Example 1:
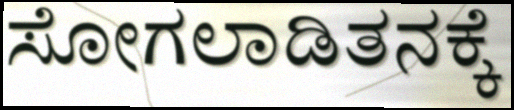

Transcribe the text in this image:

ಸೋಗಲಾಡಿತನಕ್ಕೆ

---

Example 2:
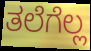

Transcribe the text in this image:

ತಲೆಗೆಲ್ಲ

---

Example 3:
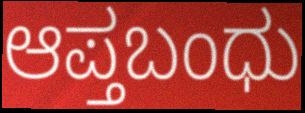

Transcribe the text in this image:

ಆಪ್ತಬಂಧು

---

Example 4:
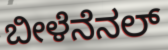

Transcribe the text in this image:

ಬೀಳೆನೆನಲ್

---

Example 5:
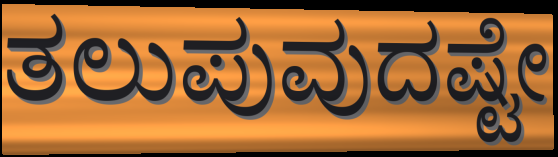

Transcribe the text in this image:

ತಲುಪುವುದಷ್ಟೇ